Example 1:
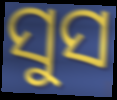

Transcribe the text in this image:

ସୁସ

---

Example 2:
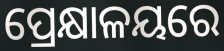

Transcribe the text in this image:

ପ୍ରେକ୍ଷାଳୟରେ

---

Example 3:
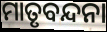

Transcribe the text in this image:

ମାତୃବନ୍ଦନା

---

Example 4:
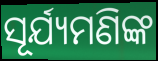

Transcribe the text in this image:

ସୂର୍ଯ୍ୟମଣିଙ୍କ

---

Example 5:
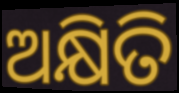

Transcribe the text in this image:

ଅକ୍ଷିତି